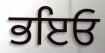
ਭਇਓ